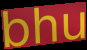
bhu